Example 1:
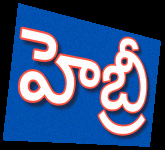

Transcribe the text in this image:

హెబ్రీ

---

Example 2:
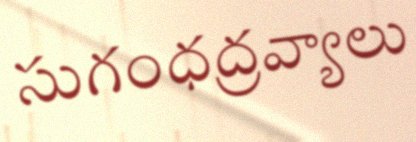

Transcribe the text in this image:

సుగంధద్రవ్యాలు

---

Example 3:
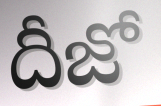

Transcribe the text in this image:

దీజో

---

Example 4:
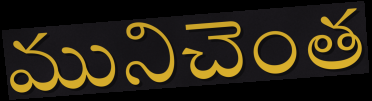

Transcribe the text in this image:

మునిచెంత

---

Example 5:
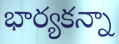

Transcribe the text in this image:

భార్యకన్నా